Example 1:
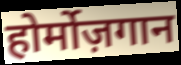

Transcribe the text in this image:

होर्मोज़गान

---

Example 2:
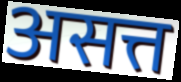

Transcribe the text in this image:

असत्त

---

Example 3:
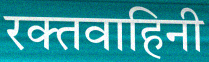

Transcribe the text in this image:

रक्तवाहिनी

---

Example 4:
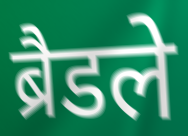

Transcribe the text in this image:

ब्रैडले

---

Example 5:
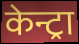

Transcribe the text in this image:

केन्ट्रा